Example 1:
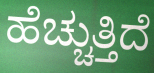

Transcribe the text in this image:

ಹೆಚ್ಚುತ್ತಿದೆ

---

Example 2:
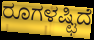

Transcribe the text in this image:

ರೂಗಳಷ್ಟಿದೆ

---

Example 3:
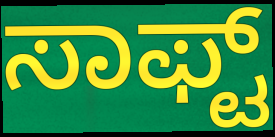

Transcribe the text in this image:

ಸಾಫ್ಟ್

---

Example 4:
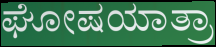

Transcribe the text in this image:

ಘೋಷಯಾತ್ರಾ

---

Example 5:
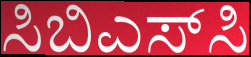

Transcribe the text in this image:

ಸಿಬಿಎಸ್‌ಸಿ